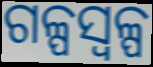
ଗଳ୍ପସ୍ୱଳ୍ପ